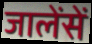
जालेंसें